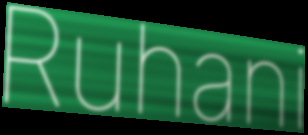
Ruhani